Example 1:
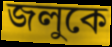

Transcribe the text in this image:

জলুকে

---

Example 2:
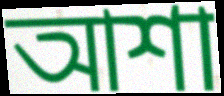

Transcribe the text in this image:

আশা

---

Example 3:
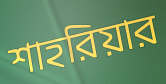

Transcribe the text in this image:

শাহরিয়ার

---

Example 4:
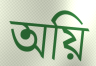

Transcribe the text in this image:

অয়ি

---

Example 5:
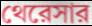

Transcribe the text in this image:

থেরেসার